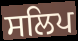
ਸਲਿਪ